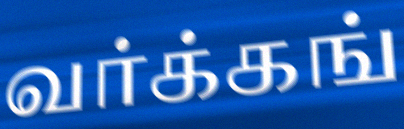
வர்க்கங்